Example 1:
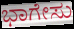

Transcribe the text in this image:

ಭಾಗೇಸು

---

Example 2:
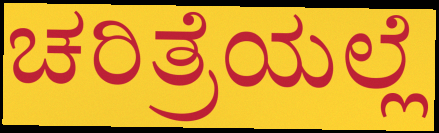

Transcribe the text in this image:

ಚರಿತ್ರೆಯಲ್ಲೆ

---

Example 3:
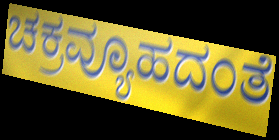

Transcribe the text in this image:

ಚಕ್ರವ್ಯೂಹದಂತೆ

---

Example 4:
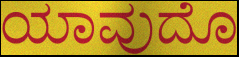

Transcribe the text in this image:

ಯಾವುದೊ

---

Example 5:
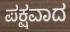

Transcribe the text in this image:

ಪಕ್ಷವಾದ